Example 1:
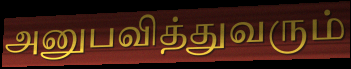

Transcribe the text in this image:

அனுபவித்துவரும்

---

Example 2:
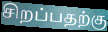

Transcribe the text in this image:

சிறப்பதற்கு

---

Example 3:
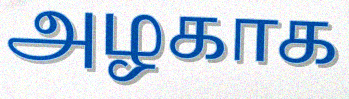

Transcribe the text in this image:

அழகாக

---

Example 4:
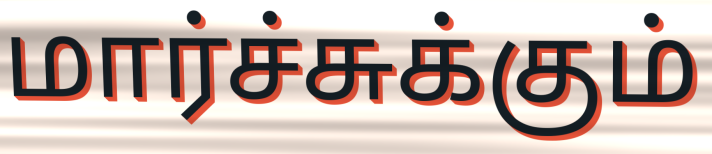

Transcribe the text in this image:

மார்ச்சுக்கும்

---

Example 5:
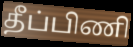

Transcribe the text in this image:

தீப்பிணி